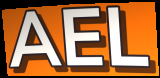
AEL